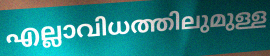
എല്ലാവിധത്തിലുമുള്ള